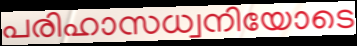
പരിഹാസധ്വനിയോടെ